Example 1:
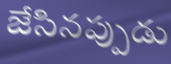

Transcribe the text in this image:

జేసినప్పుడు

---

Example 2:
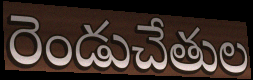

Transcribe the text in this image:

రెండుచేతుల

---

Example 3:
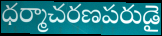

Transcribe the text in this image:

ధర్మాచరణపరుడై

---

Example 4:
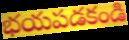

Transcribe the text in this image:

భయపడకండి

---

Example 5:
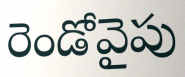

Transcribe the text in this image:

రెండోవైపు